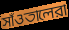
সাঁওতালেরা